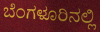
ಬೆಂಗಳೂರಿನಲ್ಲಿ